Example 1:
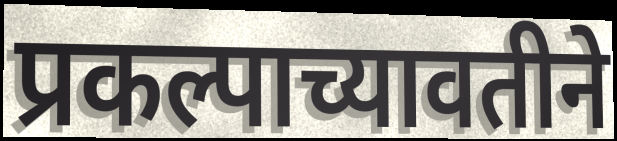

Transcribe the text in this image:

प्रकल्पाच्यावतीने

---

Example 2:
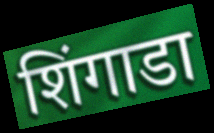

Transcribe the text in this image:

शिंगाडा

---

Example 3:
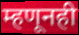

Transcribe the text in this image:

म्‍हणूनही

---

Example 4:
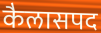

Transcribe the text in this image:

कैलासपद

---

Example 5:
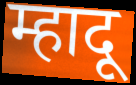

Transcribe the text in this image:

म्हादू